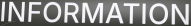
INFORMATION